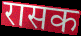
रासक